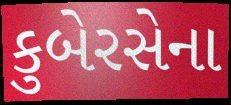
કુબેરસેના